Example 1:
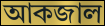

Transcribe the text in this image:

আকজাল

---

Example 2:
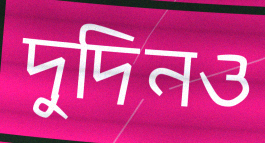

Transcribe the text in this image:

দুদিনও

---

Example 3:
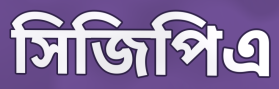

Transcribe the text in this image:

সিজিপিএ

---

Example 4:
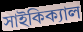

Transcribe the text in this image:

সাইকিক্যাল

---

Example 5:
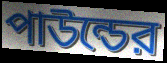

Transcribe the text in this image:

পাউন্ডের